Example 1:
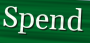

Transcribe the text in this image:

Spend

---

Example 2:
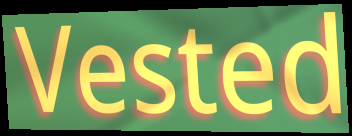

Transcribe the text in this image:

Vested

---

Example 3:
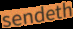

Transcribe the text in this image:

sendeth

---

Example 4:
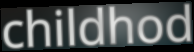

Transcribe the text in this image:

childhod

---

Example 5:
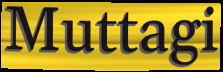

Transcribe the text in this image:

Muttagi